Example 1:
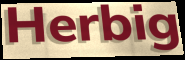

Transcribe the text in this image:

Herbig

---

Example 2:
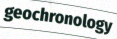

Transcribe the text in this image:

geochronology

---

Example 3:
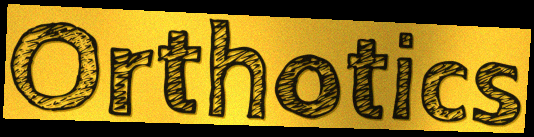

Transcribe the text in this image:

Orthotics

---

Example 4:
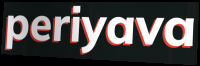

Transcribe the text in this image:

periyava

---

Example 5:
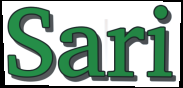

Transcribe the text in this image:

Sari